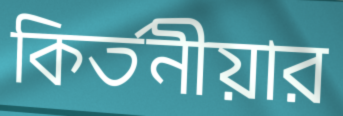
কির্তনীয়ার